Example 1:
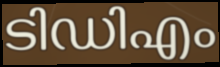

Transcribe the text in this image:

ടിഡിഎം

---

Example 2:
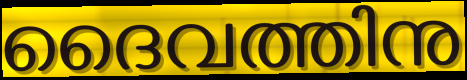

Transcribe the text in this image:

ദൈവത്തിനു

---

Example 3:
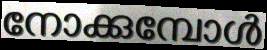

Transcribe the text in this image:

നോക്കുമ്പോൾ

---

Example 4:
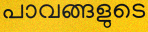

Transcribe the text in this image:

പാവങ്ങളുടെ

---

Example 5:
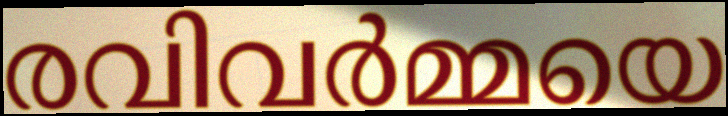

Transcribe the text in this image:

രവിവർമ്മയെ